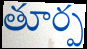
తూర్ప